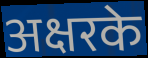
अक्षरके